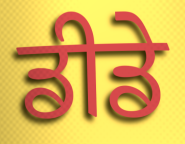
ਡੀਡੇ